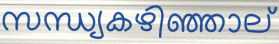
സന്ധ്യകഴിഞ്ഞാല്